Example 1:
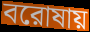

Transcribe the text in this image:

বরোষায়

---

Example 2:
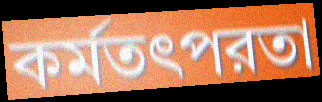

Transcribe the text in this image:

কর্মতৎপরতা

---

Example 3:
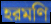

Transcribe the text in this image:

হরমণি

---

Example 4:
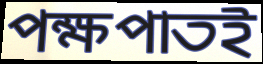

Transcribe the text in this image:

পক্ষপাতই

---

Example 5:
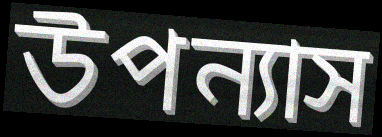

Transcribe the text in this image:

উপন্যাস